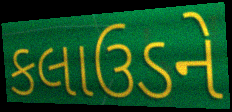
કલાઉડને